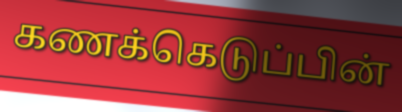
கணக்கெடுப்பின்